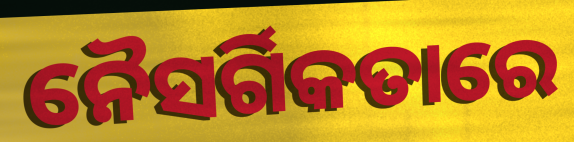
ନୈସର୍ଗିକତାରେ